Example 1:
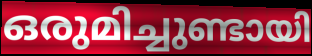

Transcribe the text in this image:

ഒരുമിച്ചുണ്ടായി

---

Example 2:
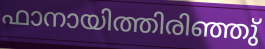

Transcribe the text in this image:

ഫാനായിത്തിരിഞ്ഞു്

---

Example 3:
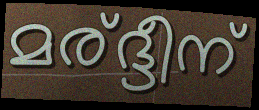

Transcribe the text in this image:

മര്ദ്ദീന്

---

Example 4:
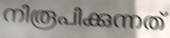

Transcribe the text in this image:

നിരൂപിക്കുന്നത്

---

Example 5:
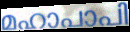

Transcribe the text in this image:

മഹാപാപി